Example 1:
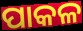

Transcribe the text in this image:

ପାକଳ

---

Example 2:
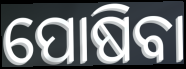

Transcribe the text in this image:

ପୋଷିବା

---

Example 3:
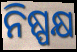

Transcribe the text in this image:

ନିଷ୍ପକ୍ଷ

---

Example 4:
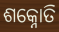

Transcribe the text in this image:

ଶକ୍ନୋତି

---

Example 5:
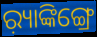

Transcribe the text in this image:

ର଼୍ୟାଙ୍କିଙ୍ଗ୍ରେ